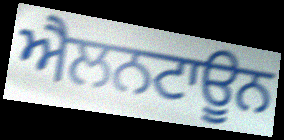
ਐਲਨਟਾਊਨ